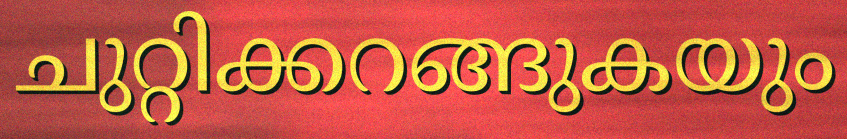
ചുറ്റിക്കറങ്ങുകയും